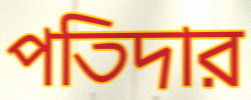
পতিদার